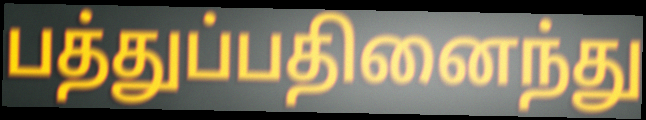
பத்துப்பதினைந்து